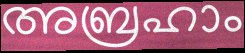
അബ്രഹാം